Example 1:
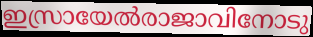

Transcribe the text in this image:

ഇസ്രായേൽരാജാവിനോടു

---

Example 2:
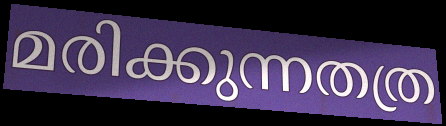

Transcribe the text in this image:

മരിക്കുന്നതത്ര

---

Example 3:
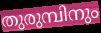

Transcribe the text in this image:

തുരുമ്പിനും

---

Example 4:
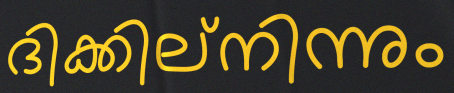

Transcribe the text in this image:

ദിക്കില്നിന്നും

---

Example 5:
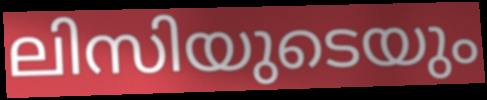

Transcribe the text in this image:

ലിസിയുടെയും